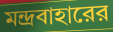
মন্দ্রবাহারের